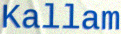
Kallam